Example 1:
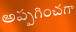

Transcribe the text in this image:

అప్పగించగా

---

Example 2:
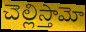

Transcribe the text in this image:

చెల్లిస్తామో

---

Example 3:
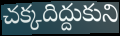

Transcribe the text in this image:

చక్కదిద్దుకుని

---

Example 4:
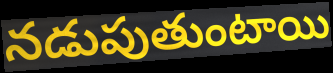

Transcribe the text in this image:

నడుపుతుంటాయి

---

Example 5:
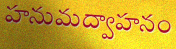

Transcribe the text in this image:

హనుమద్వాహనం